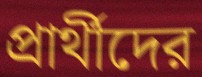
প্রার্থীদের